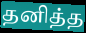
தனித்த